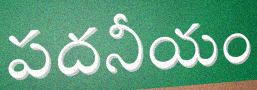
పదనీయం